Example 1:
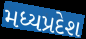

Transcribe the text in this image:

મધ્યપ્રદેશ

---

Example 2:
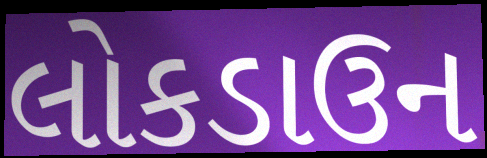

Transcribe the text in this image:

લોકડાઉન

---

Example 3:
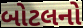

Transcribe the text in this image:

બોટલનો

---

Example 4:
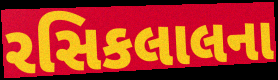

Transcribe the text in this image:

રસિકલાલના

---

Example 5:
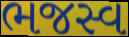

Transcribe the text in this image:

ભજસ્વ